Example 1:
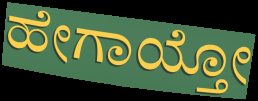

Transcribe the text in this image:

ಹೇಗಾಯ್ತೋ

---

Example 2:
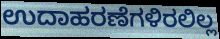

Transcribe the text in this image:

ಉದಾಹರಣೆಗಳಿರಲಿಲ್ಲ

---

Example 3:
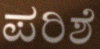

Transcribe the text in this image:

ಪರಿಶೆ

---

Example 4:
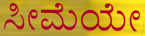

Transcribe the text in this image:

ಸೀಮೆಯೇ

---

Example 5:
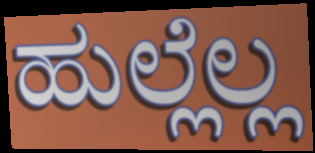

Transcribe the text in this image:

ಹುಲ್ಲೆಲ್ಲ